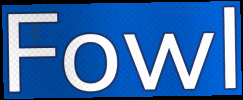
Fowl